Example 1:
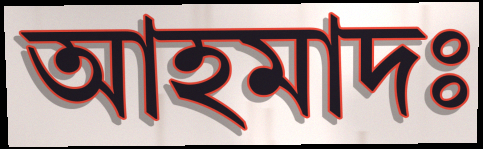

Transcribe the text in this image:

আহমাদঃ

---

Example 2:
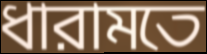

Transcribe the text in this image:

ধারামতে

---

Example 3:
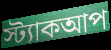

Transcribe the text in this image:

স্ট্যাকআপ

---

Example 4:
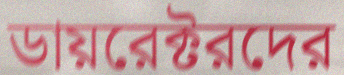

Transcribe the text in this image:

ডায়রেক্টরদের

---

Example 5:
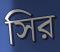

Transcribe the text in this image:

সির